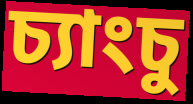
চ্যাংচু